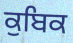
ਕੁਬਿਕ